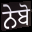
ਨੇਬੋ